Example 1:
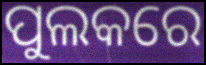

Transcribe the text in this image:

ପୁଲକରେ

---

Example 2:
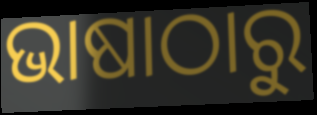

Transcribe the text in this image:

ଭାଷାଠାରୁ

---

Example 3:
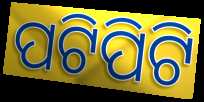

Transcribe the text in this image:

ପଟିପିଟି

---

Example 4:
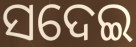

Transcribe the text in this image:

ସଦେଇ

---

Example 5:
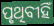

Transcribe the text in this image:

ପୃଥିବୀହିଁ